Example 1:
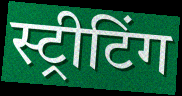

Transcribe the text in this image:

स्ट्रीटिंग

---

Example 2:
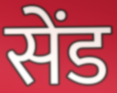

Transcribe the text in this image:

सेंड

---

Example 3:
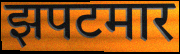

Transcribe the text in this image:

झपटमार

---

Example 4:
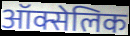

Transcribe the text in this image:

ऑक्सेलिक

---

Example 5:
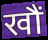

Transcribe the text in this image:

खौं